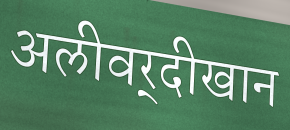
अलीवर्दीखान